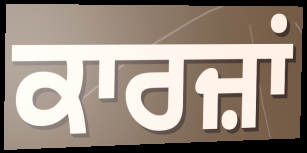
ਕਾਰਜ਼ਾਂ